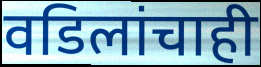
वडिलांचाही